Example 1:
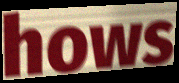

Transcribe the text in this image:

hows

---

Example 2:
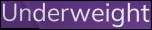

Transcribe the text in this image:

Underweight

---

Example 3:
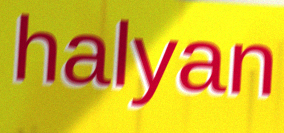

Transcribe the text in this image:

halyan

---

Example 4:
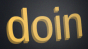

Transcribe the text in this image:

doin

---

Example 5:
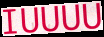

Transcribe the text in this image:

IUUUU